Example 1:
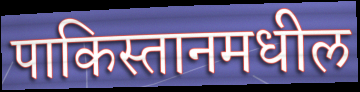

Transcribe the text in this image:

पाकिस्तानमधील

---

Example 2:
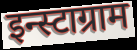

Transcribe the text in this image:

इन्स्टाग्राम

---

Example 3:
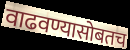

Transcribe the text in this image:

वाढवण्यासोबतच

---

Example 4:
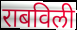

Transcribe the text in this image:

राबविली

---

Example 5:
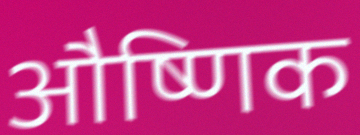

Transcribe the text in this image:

औष्णिक